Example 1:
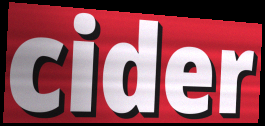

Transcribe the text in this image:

cider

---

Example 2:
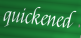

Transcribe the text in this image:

quickened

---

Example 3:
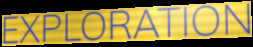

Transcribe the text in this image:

EXPLORATION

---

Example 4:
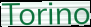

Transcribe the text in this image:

Torino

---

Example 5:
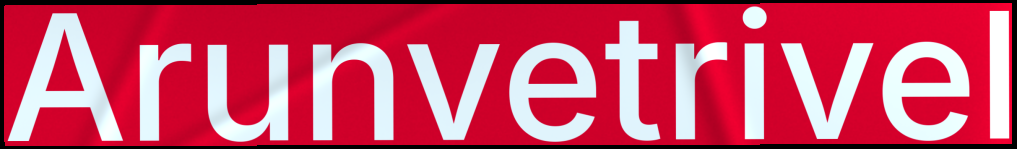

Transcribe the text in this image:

Arunvetrivel